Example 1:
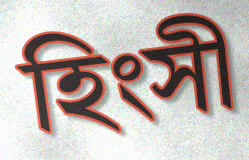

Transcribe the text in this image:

হিংসী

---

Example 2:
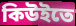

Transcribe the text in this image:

কিউইতে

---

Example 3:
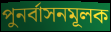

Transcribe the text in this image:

পুনর্বাসনমূলক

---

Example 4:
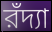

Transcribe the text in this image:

রঁদ্যা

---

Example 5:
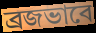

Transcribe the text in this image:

ব্রজভাবে